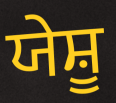
ਯੇਸ਼ੂ